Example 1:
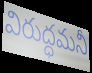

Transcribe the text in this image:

విరుద్ధమనీ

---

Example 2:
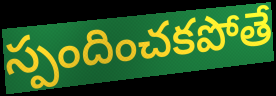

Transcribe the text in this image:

స్పందించకపోతే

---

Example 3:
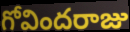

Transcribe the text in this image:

గోవిందరాజు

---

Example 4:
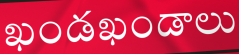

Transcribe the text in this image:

ఖండఖండాలు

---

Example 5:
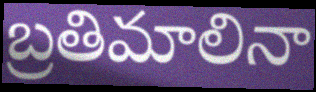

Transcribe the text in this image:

బ్రతిమాలినా